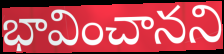
భావించానని